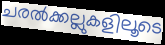
ചരൽക്കല്ലുകളിലൂടെ